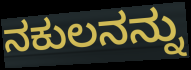
ನಕುಲನನ್ನು